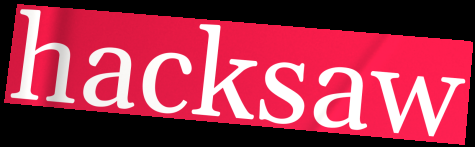
hacksaw